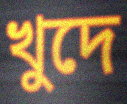
খুদে